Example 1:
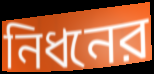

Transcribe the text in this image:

নিধনের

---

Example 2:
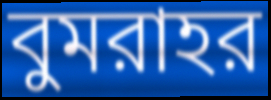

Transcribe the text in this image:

বুমরাহর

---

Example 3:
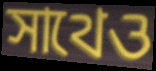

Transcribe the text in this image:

সাথেও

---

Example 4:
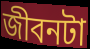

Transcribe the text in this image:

জীবনটা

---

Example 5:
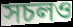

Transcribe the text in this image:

সচলও